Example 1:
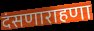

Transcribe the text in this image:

दंसणाराहणा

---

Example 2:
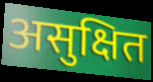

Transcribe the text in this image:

असुक्षित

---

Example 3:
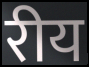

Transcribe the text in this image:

रीय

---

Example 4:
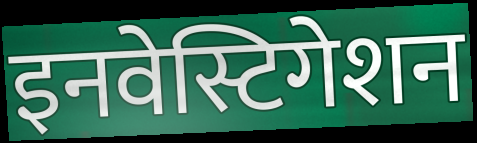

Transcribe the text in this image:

इनवेस्टिगेशन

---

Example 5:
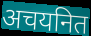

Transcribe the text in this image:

अचयनित